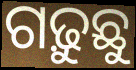
ଗଢ଼ୁଛୁ